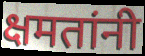
क्षमतांनी